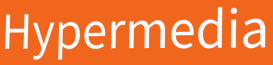
Hypermedia